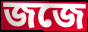
জজে